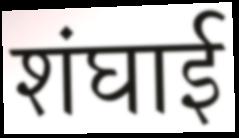
शंघाई